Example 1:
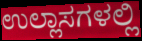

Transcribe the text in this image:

ಉಲ್ಲಾಸಗಳಲ್ಲಿ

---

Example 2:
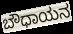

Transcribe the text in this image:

ಬೌಧಾಯನ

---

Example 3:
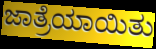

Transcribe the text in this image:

ಜಾತ್ರೆಯಾಯಿತು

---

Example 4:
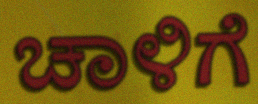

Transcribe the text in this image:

ಚಾಳಿಗೆ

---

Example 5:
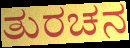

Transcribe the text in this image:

ತುರಚನ